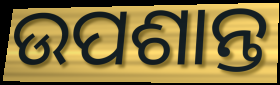
ଉପଶାନ୍ତ